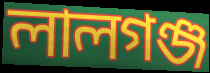
লালগঞ্জ